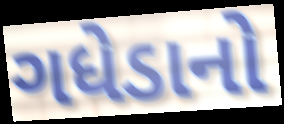
ગધેડાનો